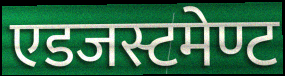
एडजस्टमेण्ट